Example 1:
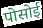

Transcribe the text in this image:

पोसोई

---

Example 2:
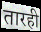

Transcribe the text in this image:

तारही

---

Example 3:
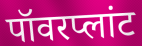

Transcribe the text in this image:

पॉवरप्लांट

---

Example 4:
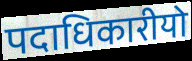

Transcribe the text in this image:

पदाधिकारीयो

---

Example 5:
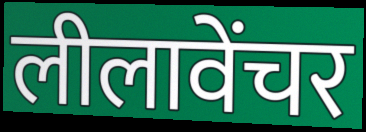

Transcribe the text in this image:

लीलावेंचर